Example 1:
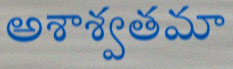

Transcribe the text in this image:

అశాశ్వతమా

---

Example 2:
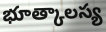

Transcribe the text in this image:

భూత్కాలస్య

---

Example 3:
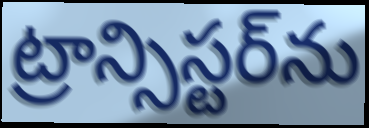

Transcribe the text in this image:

ట్రాన్సిస్టర్‌ను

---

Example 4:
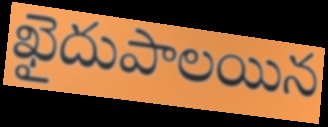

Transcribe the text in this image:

ఖైదుపాలయిన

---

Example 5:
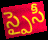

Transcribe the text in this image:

స్పైసీ